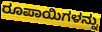
ರೂಪಾಯಿಗಳನ್ನು